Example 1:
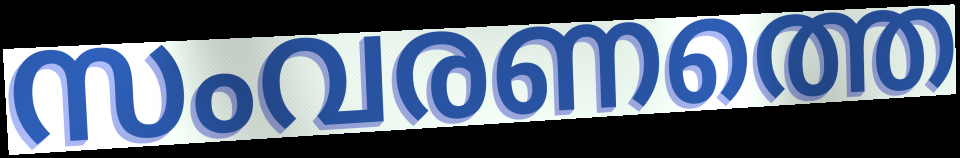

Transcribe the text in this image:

സംവരണത്തെ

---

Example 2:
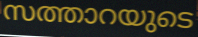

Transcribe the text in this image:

സത്താറയുടെ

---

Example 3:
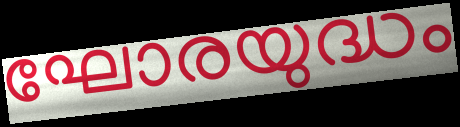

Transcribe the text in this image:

ഘോരയുദ്ധം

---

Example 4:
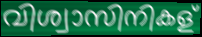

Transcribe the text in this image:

വിശ്വാസിനികള്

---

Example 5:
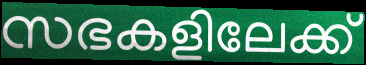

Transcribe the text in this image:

സഭകളിലേക്ക്